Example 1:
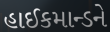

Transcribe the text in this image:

હાઈકમાન્ડને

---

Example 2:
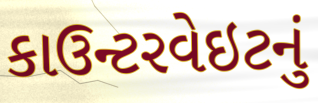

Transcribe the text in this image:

કાઉન્ટરવેઇટનું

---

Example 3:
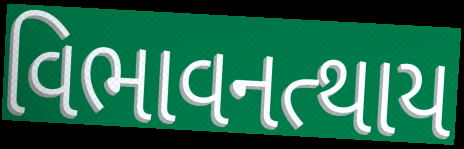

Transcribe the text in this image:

વિભાવનત્થાય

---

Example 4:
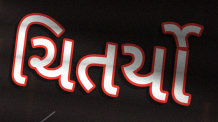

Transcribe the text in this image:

ચિતર્યો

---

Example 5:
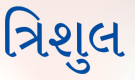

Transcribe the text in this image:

ત્રિશુલ